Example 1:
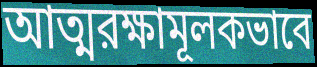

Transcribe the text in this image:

আত্মরক্ষামূলকভাবে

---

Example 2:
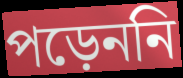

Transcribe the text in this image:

পড়েননি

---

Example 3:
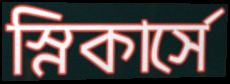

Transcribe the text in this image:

স্নিকার্সে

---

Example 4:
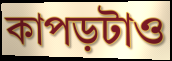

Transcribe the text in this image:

কাপড়টাও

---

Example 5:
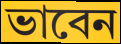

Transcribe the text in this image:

ভাবেন